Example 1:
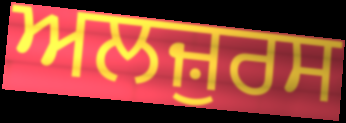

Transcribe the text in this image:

ਅਲਜ਼ੁਰਸ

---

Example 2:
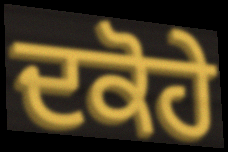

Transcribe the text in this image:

ਦਕੋਹੇ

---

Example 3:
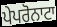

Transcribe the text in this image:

ਪੇਪਰੋਨਾਟਾ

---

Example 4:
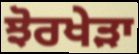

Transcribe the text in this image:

ਝੋਰਖੇੜਾ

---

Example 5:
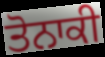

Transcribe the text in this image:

ਤੋਨਾਕੀ